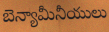
బెన్యామీనీయులు